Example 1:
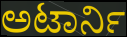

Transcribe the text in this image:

ಅಟಾರ್ನಿ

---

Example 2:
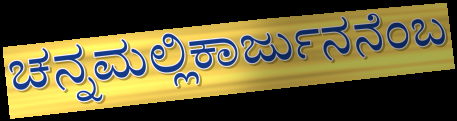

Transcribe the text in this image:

ಚನ್ನಮಲ್ಲಿಕಾರ್ಜುನನೆಂಬ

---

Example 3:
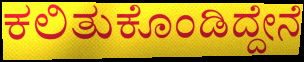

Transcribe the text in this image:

ಕಲಿತುಕೊಂಡಿದ್ದೇನೆ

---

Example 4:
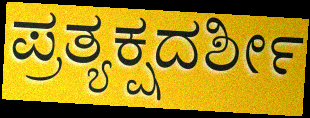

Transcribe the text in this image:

ಪ್ರತ್ಯಕ್ಷದರ್ಶೀ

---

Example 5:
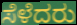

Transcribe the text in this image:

ಸೆಳೆದರು